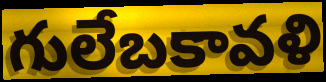
గులేబకావళి